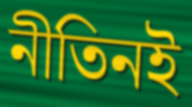
নীতিনই